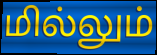
மில்லும்